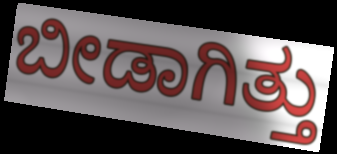
ಬೀಡಾಗಿತ್ತು